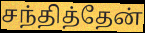
சந்தித்தேன்